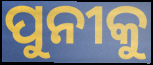
ପୁନୀକୁ